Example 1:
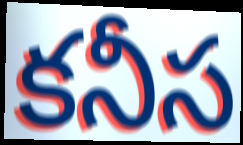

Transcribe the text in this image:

కనీస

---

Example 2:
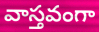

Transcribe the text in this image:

వాస్తవంగా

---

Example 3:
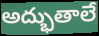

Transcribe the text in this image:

అద్భుతాలే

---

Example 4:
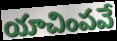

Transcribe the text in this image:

యాచింపవే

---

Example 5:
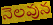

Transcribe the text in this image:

నెలవున